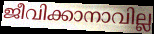
ജീവിക്കാനാവില്ല